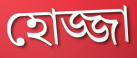
হোজ্জা